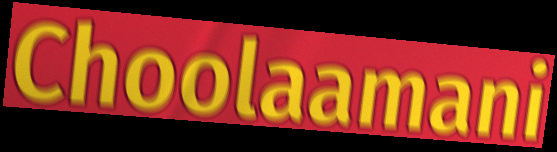
Choolaamani